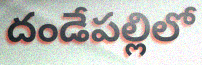
దండేపల్లిలో